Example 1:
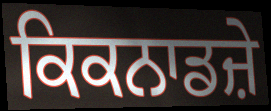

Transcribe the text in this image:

ਕਿਕਨਾਡਜ਼ੇ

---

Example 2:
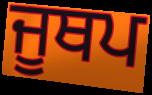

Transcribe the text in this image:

ਜੂਥਪ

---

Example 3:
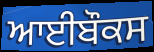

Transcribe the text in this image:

ਆਈਬੌਕਸ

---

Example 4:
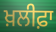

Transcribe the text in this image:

ਖ਼ਲੀਫ਼ਾ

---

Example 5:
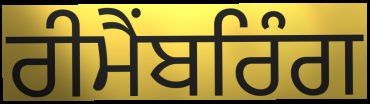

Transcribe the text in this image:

ਰੀਮੈਂਬਰਿੰਗ